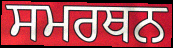
ਸਮਰਥਨ